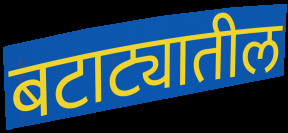
बटाट्यातील